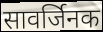
सावर्जिनक